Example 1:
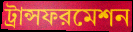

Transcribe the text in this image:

ট্রান্সফরমেশন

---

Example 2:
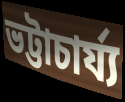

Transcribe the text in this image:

ভট্টাচার্য্য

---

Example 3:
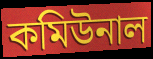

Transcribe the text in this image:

কমিউনাল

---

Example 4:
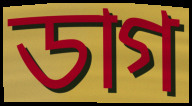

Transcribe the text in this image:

ডাগ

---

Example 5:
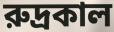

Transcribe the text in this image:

রুদ্রকাল